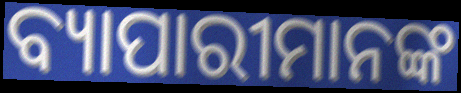
ବ୍ୟାପାରୀମାନଙ୍କ